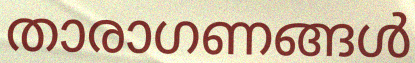
താരാഗണങ്ങൾ